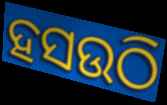
ହସଉଠି